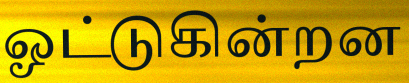
ஓட்டுகின்றன